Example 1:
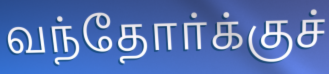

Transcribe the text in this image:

வந்தோர்க்குச்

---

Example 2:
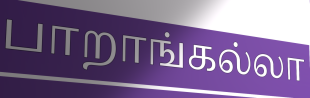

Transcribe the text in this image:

பாறாங்கல்லா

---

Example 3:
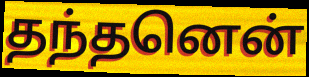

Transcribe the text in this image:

தந்தனென்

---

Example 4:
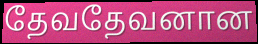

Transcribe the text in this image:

தேவதேவனான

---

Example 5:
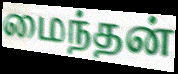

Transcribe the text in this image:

மைந்தன்